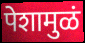
पेशामुळं